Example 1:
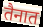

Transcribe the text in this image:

तैनात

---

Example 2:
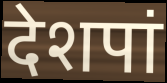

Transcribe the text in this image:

देशपां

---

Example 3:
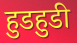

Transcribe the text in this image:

हुडहुडी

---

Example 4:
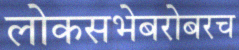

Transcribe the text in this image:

लोकसभेबरोबरच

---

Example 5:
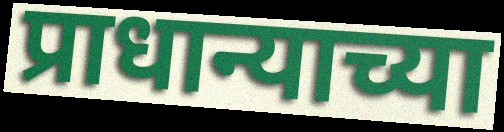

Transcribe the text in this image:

प्राधान्याच्या